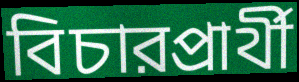
বিচারপ্রার্থী